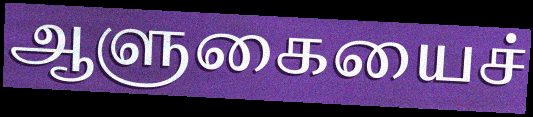
ஆளுகையைச்